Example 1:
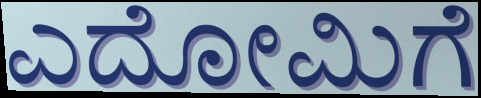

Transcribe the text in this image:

ಎದೋಮಿಗೆ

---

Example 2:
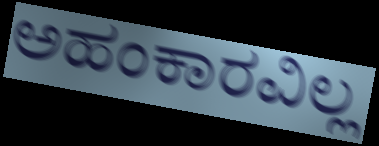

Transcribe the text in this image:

ಅಹಂಕಾರವಿಲ್ಲ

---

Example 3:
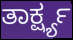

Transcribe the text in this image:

ತಾರ್ಕ್ಷ್ಯ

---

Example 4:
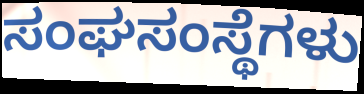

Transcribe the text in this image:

ಸಂಘಸಂಸ್ಥೆಗಳು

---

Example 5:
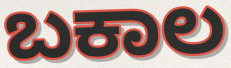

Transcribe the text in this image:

ಬಕಾಲ